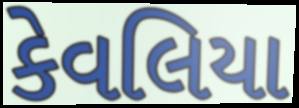
કેવલિયા